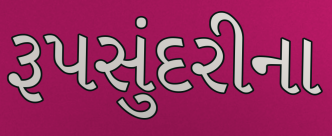
રૂપસુંદરીના